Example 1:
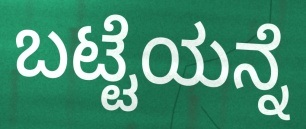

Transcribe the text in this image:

ಬಟ್ಟೆಯನ್ನೆ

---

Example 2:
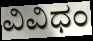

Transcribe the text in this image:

ವಿವಿಧಂ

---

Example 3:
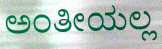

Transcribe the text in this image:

ಅಂತೀಯಲ್ಲ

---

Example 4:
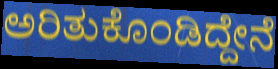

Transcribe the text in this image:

ಅರಿತುಕೊಂಡಿದ್ದೇನೆ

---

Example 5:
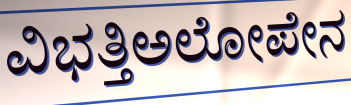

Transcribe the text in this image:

ವಿಭತ್ತಿಅಲೋಪೇನ